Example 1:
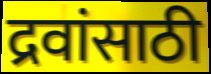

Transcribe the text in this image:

द्रवांसाठी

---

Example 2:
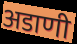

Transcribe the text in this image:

अडाणी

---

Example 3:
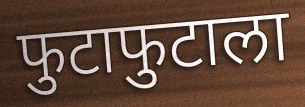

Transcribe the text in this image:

फुटाफुटाला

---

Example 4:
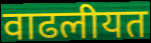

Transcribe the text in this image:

वाढलीयत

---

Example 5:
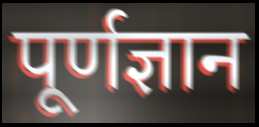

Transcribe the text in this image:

पूर्णज्ञान